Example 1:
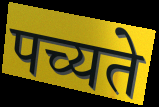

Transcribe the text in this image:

पच्यते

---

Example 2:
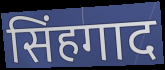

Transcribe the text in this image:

सिंहगाद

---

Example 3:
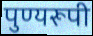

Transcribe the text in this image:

पुण्यरूपी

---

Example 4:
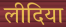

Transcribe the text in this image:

लीदिया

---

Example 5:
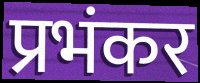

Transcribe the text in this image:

प्रभंकर